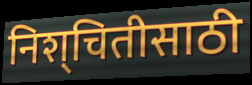
निश्चितीसाठी